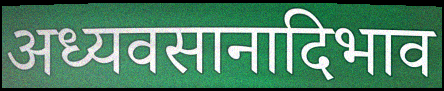
अध्यवसानादिभाव